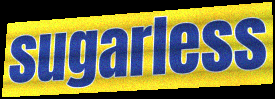
sugarless